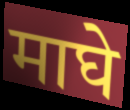
माघे